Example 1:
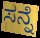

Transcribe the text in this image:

ಸನ್ನೆ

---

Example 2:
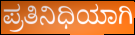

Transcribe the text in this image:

ಪ್ರತಿನಿಧಿಯಾಗಿ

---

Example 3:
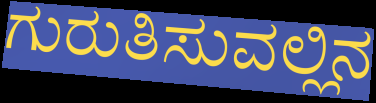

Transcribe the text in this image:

ಗುರುತಿಸುವಲ್ಲಿನ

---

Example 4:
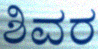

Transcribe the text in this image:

ಶಿವರ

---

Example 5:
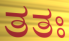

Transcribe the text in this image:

ತತಃ